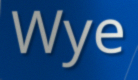
Wye